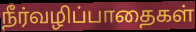
நீர்வழிப்பாதைகள்